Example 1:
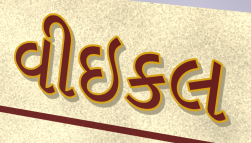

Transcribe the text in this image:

વીઇકલ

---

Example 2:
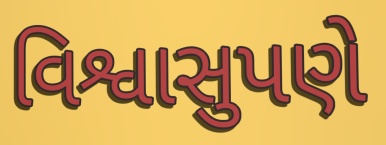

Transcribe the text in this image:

વિશ્વાસુપણે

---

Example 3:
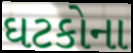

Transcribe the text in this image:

ઘટકોના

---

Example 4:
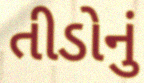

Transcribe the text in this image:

તીડોનું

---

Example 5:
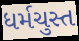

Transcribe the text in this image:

ધર્મચુસ્ત